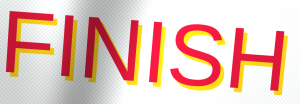
FINISH